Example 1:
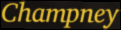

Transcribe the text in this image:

Champney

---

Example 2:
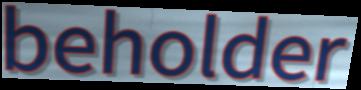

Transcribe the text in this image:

beholder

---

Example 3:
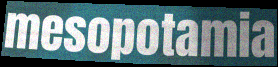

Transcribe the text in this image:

mesopotamia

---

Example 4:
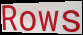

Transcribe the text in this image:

Rows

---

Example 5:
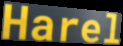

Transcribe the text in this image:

Harel